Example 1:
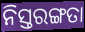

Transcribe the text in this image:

ନିସ୍ତରଙ୍ଗତା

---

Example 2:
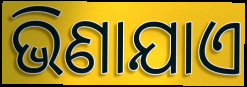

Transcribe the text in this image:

ଭିଣାଯାଏ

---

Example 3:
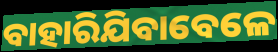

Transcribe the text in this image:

ବାହାରିଯିବାବେଳେ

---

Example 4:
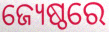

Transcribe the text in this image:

ଜ୍ୟେଷ୍ଠରେ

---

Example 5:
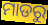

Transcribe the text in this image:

ମାଡରୁ